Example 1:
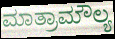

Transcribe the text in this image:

ಮಾತ್ರಾಮೌಲ್ಯ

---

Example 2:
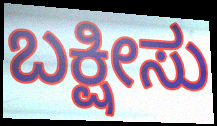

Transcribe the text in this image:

ಬಕ್ಷೀಸು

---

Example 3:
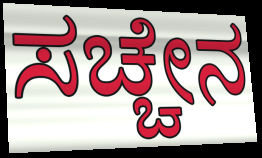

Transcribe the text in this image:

ಸಚ್ಚೇನ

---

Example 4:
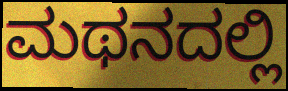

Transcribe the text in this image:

ಮಥನದಲ್ಲಿ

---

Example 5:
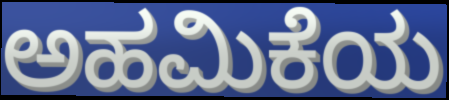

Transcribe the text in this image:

ಅಹಮಿಕೆಯ